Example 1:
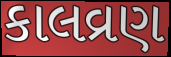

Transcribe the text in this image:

કાલવ્રણ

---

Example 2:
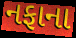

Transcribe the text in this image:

નફાના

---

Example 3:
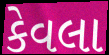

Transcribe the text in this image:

કેવલા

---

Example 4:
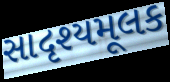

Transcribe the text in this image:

સાદૃશ્યમૂલક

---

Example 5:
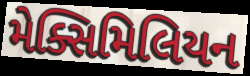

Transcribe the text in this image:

મેક્સિમિલિયન